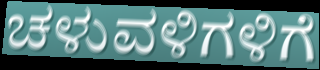
ಚಳುವಳಿಗಳಿಗೆ